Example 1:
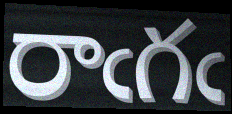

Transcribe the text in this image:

రాఁగఁ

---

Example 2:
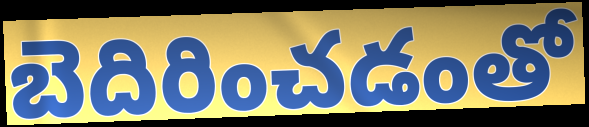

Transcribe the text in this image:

బెదిరించడంతో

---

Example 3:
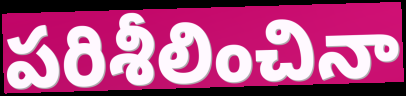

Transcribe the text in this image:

పరిశీలించినా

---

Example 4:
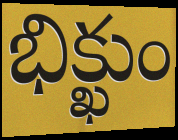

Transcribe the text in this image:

భిక్ఖుం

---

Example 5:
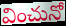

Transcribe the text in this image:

వించునో